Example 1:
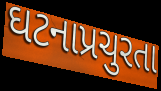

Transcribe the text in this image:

ઘટનાપ્રચુરતા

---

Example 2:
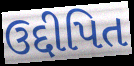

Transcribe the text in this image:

ઉદ્દીપિત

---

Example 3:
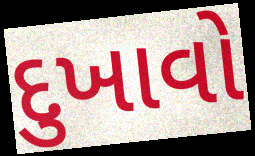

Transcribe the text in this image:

દુખાવો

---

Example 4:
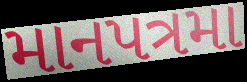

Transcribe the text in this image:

માનપત્રમા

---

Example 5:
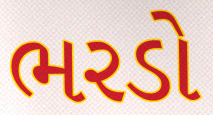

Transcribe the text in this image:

ભરડો